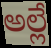
అల్లే